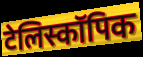
टेलिस्कॉपिक